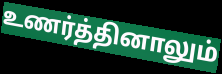
உணர்த்தினாலும்